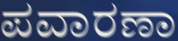
ಪವಾರಣಾ